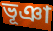
ভূঞা